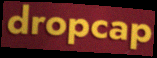
dropcap